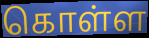
கொள்ள